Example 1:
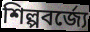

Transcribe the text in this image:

শিল্পবর্জ্যে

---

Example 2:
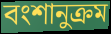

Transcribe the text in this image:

বংশানুক্রম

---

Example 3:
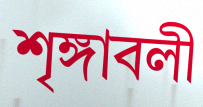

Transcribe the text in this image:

শৃঙ্গাবলী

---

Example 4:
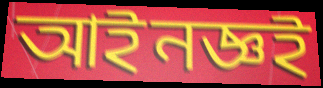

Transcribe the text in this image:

আইনজ্ঞই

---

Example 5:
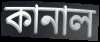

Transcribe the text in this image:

কানাল